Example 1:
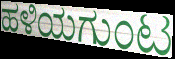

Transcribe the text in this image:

ಹಳಿಯಗುಂಟ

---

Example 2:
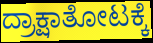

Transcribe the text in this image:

ದ್ರಾಕ್ಷಾತೋಟಕ್ಕೆ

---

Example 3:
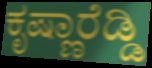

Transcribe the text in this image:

ಕೃಷ್ಣಾರೆಡ್ಡಿ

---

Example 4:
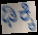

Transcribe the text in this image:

ಢಿಕ್ಕಿ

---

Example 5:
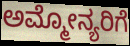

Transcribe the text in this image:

ಅಮ್ಮೋನ್ಯರಿಗೆ